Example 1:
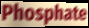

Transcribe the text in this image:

Phosphate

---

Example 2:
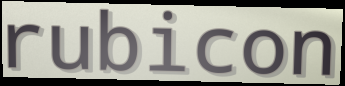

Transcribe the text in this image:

rubicon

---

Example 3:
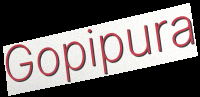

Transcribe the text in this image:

Gopipura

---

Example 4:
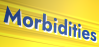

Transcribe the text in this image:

Morbidities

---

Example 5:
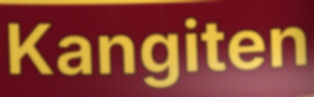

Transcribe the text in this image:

Kangiten